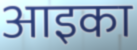
आइका